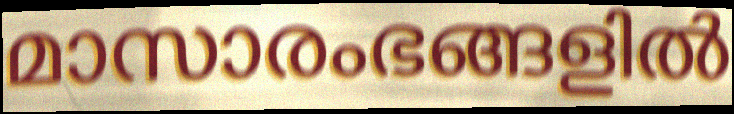
മാസാരംഭങ്ങളിൽ